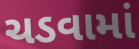
ચડવામાં